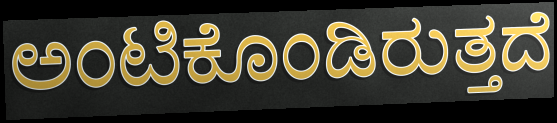
ಅಂಟಿಕೊಂಡಿರುತ್ತದೆ